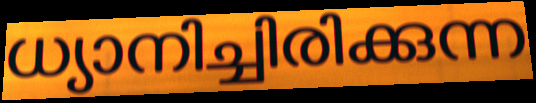
ധ്യാനിച്ചിരിക്കുന്ന